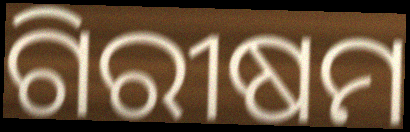
ଗିରୀଷମ